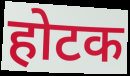
होटक